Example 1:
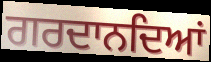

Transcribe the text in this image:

ਗਰਦਾਨਦਿਆਂ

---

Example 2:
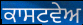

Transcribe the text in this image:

ਕਾਸਟਵੇਅ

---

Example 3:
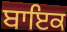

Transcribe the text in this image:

ਬਾਇਕ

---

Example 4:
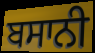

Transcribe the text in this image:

ਬਸਾਨੀ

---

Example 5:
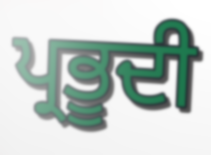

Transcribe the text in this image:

ਪ੍ਰਭੂਦੀ